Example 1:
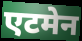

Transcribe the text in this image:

एटमेन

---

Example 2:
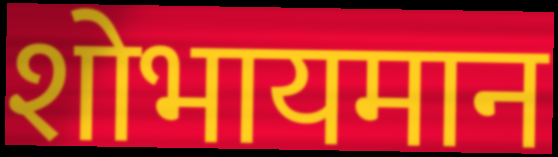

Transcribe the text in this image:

शोभायमान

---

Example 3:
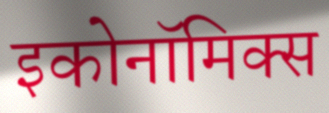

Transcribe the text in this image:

इकोनॉमिक्स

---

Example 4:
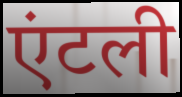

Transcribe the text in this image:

एंटली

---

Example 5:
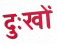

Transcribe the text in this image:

दुःखों